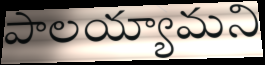
పాలయ్యామని